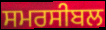
ਸਮਰਸੀਬਲ